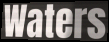
Waters